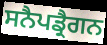
ਸਨੈਪਡ੍ਰੈਗਨ